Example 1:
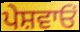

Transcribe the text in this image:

ਪੇਸ਼ਵਾਓਂ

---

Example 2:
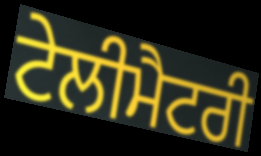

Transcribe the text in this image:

ਟੇਲੀਮੈਟਰੀ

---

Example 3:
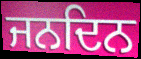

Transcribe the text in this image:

ਜਨਦਿਨ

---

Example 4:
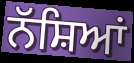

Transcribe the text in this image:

ਨੱਸ਼ਿਆਂ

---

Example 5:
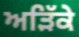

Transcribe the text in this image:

ਅੜਿੱਕੇ